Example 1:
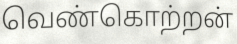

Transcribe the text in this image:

வெண்கொற்றன்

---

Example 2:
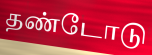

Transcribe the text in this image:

தண்டோடு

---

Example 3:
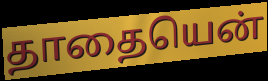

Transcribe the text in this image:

தாதையென்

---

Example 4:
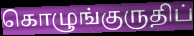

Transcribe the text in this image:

கொழுங்குருதிப்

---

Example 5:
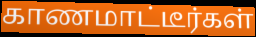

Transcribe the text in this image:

காணமாட்டீர்கள்